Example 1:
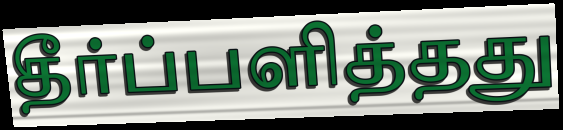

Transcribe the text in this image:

தீர்ப்பளித்தது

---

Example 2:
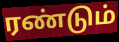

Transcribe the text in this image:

ரண்டும்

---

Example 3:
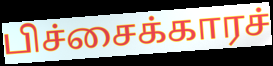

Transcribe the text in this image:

பிச்சைக்காரச்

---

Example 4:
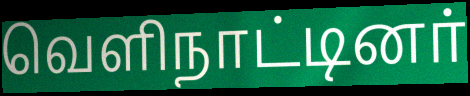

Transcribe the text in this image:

வெளிநாட்டினர்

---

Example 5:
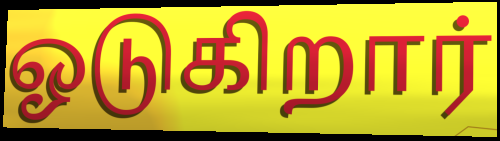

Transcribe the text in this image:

ஓடுகிறார்